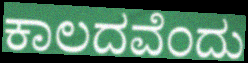
ಕಾಲದವೆಂದು